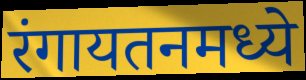
रंगायतनमध्ये